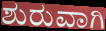
ಶುರುವಾಗಿ